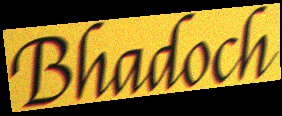
Bhadoch